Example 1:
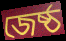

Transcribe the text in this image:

জেষ্ঠ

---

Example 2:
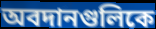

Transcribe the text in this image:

অবদানগুলিকে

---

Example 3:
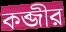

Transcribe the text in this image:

কব্জীর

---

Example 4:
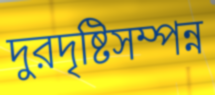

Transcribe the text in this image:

দুরদৃষ্টিসম্পন্ন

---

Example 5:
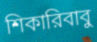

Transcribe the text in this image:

শিকারিবাবু